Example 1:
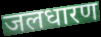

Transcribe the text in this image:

जलधारण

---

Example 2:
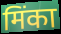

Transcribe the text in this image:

मिंका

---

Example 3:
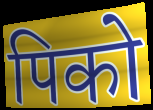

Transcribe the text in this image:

पिको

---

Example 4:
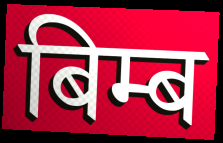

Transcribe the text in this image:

बिम्ब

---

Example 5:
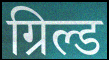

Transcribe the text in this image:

ग्रिल्ड